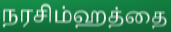
நரசிம்ஹத்தை